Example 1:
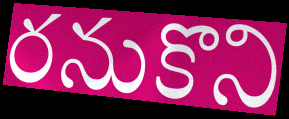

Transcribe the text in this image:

రనుకొని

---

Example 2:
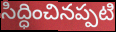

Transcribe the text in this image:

సిద్ధించినప్పటి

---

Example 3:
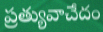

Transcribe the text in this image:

ప్రత్యువాచేదం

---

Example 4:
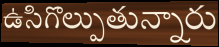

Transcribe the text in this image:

ఉసిగొల్పుతున్నారు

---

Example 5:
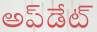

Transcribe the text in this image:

అప్‌డేట్